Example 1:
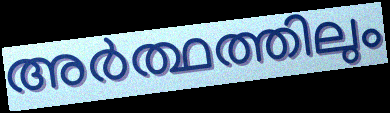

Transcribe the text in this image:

അർത്ഥത്തിലും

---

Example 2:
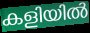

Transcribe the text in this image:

കളിയിൽ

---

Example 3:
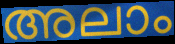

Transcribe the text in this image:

അലാം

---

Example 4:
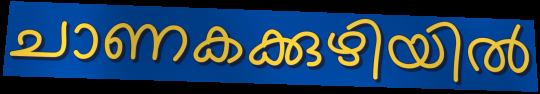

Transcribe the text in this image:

ചാണകക്കുഴിയിൽ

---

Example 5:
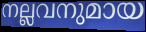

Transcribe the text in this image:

നല്ലവനുമായ